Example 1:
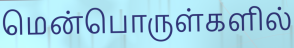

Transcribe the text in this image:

மென்பொருள்களில்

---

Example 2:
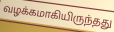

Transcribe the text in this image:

வழக்கமாகியிருந்தது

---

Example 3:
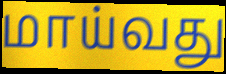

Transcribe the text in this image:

மாய்வது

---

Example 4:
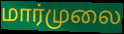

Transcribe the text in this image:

மார்முலை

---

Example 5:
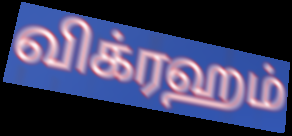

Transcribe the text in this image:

விக்ரஹம்